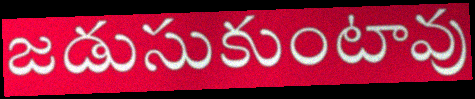
జడుసుకుంటావు